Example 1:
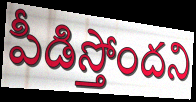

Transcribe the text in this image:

పీడిస్తోందని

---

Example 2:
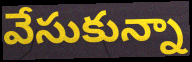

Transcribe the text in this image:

వేసుకున్నా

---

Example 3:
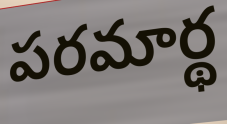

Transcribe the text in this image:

పరమార్థ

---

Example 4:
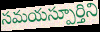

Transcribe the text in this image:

సమయస్పూర్తిని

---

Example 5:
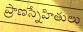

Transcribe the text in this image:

ప్రాణస్నేహితులు